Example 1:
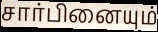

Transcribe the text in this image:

சார்பினையும்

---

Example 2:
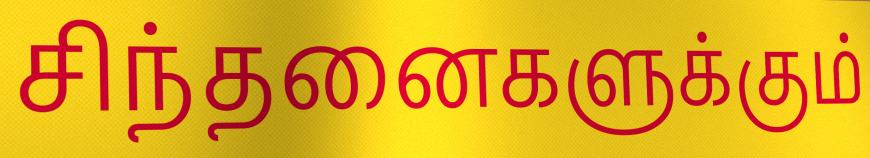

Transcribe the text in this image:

சிந்தனைகளுக்கும்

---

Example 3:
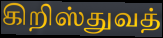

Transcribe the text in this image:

கிறிஸ்துவத்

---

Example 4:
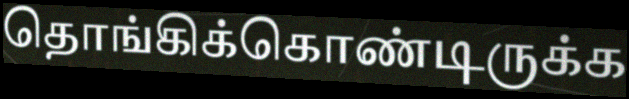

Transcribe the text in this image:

தொங்கிக்கொண்டிருக்க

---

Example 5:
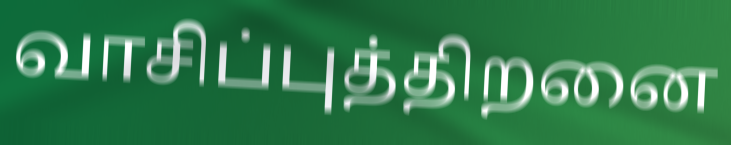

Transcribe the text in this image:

வாசிப்புத்திறனை